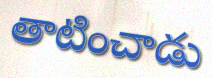
తాటించాడు